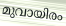
മുവായിരം